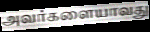
அவர்களையாவது